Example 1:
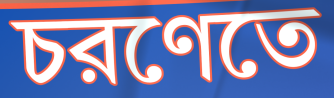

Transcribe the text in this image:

চরণেতে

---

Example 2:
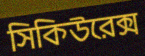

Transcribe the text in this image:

সিকিউরেক্স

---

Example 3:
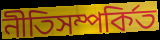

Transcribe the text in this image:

নীতিসম্পর্কিত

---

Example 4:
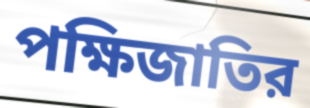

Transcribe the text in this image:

পক্ষিজাতির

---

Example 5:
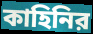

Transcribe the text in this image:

কাহিনির